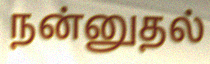
நன்னுதல்